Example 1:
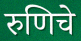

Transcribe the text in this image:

रुणिचे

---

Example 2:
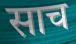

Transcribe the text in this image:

साच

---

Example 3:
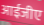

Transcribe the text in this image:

आईजीए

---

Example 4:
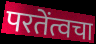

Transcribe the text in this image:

परतेंत्वचा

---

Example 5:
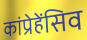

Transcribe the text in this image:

कांप्रेहेंसिव